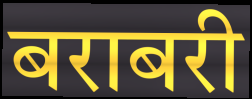
बराबरी